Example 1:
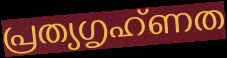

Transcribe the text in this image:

പ്രത്യഗൃഹ്ണത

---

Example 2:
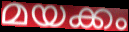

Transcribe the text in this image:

മയക്കം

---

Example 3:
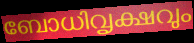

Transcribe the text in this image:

ബോധിവൃക്ഷവും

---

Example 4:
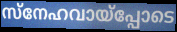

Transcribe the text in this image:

സ്നേഹവായ്പ്പോടെ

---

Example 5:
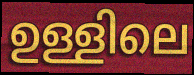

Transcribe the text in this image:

ഉള്ളിലെ